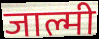
जाल्मी